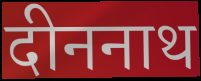
दीननाथ